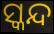
ସ୍କନ୍ଦ